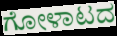
ಗೋಳಾಟದ